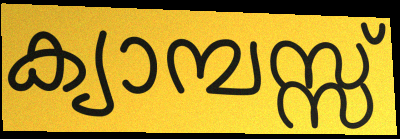
ക്യാമ്പസ്സ്